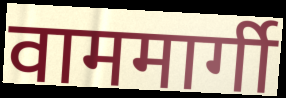
वाममार्गी